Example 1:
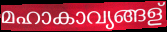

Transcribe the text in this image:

മഹാകാവ്യങ്ങള്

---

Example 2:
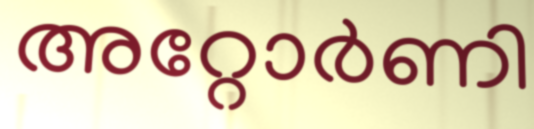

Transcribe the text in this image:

അറ്റോർണി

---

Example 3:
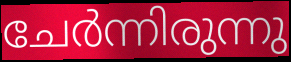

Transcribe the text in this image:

ചേർന്നിരുന്നു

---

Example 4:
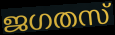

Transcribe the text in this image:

ജഗതസ്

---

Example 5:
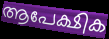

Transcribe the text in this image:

ആപേക്ഷിക